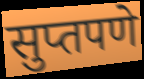
सुप्तपणे